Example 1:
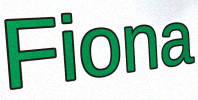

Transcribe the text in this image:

Fiona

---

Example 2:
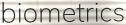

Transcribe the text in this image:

biometrics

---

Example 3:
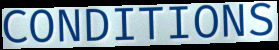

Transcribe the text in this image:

CONDITIONS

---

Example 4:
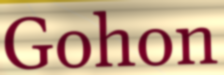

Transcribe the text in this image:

Gohon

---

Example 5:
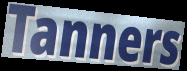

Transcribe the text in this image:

Tanners